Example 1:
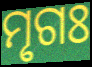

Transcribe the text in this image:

ମୃଗଃ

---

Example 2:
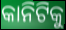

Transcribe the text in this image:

କାନିଟିକୁ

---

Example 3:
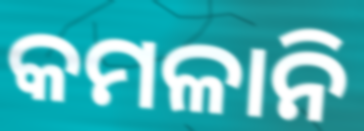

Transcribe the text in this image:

କମଳାନି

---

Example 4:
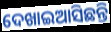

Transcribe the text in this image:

ଦେଖାଇଆସିଛନ୍ତି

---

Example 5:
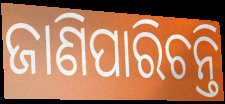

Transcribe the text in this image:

ଜାଣିପାରିଚନ୍ତି